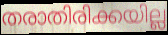
തരാതിരിക്കയില്ല